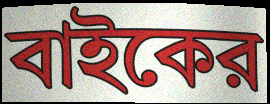
বাইকের